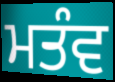
ਮਤੰਵ